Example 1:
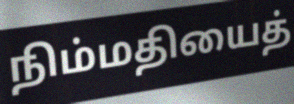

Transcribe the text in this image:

நிம்மதியைத்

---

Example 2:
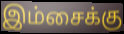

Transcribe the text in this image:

இம்சைக்கு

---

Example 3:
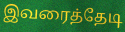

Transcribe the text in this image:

இவரைத்தேடி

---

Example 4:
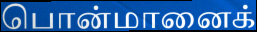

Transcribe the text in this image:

பொன்மானைக்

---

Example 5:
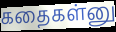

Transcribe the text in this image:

கதைகள்னு